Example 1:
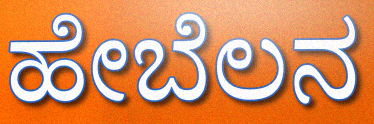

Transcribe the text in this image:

ಹೇಬೆಲನ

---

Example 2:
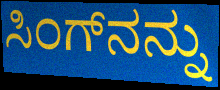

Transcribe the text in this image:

ಸಿಂಗ್‌ನನ್ನು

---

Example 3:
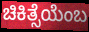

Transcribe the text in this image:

ಚಿಕಿತ್ಸೆಯೆಂಬ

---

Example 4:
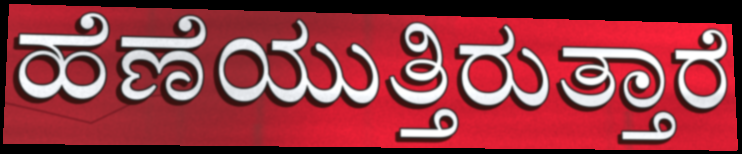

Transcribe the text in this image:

ಹೆಣೆಯುತ್ತಿರುತ್ತಾರೆ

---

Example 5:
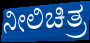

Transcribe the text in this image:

ನೀಲಿಚಿತ್ರ